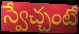
స్వేచ్చంటే